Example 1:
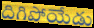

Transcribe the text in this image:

దిగిపోయేడు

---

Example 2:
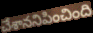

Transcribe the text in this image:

చేశాననిపించింది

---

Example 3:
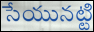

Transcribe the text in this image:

సేయునట్టి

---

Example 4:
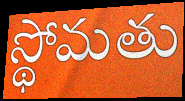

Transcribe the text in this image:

స్థోమతు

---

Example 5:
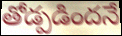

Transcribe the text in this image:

తోడ్పడిందనే